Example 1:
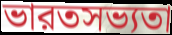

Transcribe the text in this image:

ভারতসভ্যতা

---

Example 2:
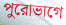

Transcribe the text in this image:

পুরোভাগে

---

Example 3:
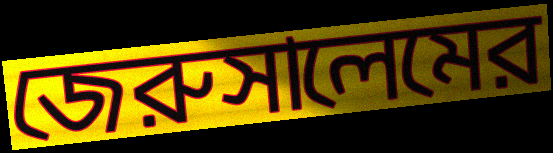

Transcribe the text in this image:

জেরুসালেমের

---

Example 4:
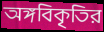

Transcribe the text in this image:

অঙ্গবিকৃতির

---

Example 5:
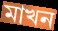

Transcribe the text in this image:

মাখন